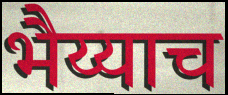
भैय्याच